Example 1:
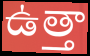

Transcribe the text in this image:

ఉత్తా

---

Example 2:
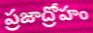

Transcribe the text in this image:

ప్రజాద్రోహం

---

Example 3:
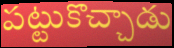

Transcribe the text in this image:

పట్టుకొచ్చాడు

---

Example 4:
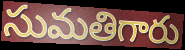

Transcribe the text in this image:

సుమతిగారు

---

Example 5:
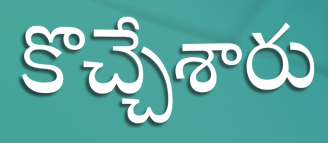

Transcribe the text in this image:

కొచ్చేశారు